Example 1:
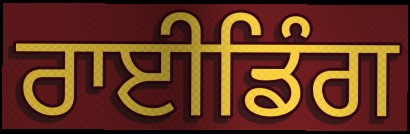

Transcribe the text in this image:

ਰਾਈਡਿੰਗ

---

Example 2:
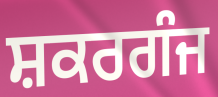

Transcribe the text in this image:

ਸ਼ਕਰਗੰਜ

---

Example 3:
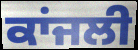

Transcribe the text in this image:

ਕਾਂਜਲੀ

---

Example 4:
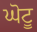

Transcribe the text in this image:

ਘੋਟੂ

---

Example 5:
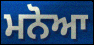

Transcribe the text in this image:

ਮਨੋਆ